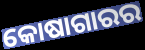
କୋଷାଗାରର